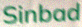
Sinbad